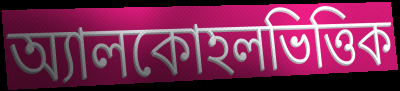
অ্যালকোহলভিত্তিক